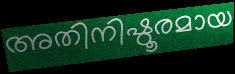
അതിനിഷ്ഠൂരമായ